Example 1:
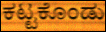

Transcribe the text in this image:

ಕಟ್ಟಕೊಂಡು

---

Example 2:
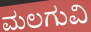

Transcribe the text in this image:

ಮಲಗುವಿ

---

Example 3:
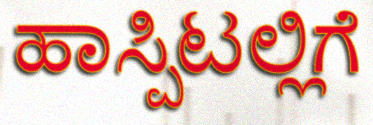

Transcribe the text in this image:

ಹಾಸ್ಪಿಟಲ್ಲಿಗೆ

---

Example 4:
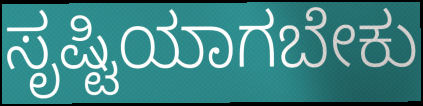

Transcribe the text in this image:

ಸೃಷ್ಟಿಯಾಗಬೇಕು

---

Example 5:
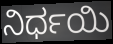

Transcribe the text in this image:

ನಿರ್ಧಯಿ